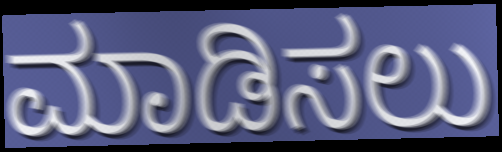
ಮಾಡಿಸಲು